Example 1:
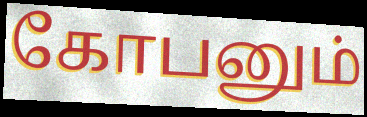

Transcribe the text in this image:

கோபனும்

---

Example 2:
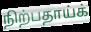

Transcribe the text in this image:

நிற்பதாய்க்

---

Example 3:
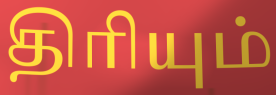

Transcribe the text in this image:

திரியும்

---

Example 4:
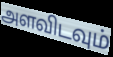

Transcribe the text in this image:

அளவிடவும்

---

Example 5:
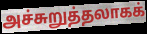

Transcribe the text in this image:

அச்சுறுத்தலாகக்